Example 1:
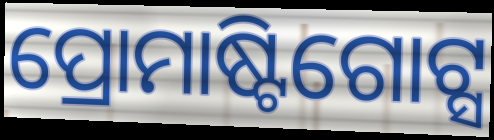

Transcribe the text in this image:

ପ୍ରୋମାଷ୍ଟିଗୋଟ୍ସ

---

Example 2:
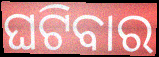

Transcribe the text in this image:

ଘଟିବାର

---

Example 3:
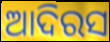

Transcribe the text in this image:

ଆଦିରସ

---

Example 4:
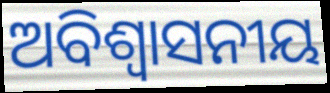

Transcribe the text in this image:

ଅବିଶ୍ୱାସନୀୟ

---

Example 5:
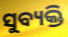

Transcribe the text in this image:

ସୁବ୍ୟକ୍ତି